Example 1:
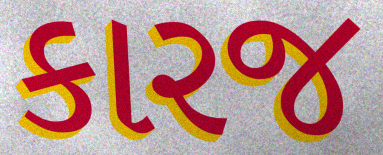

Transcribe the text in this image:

કારજ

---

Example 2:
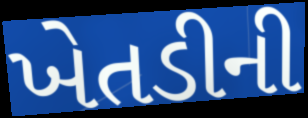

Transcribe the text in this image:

ખેતડીની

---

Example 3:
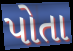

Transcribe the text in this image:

પોતા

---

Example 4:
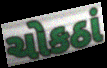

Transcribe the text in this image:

ચોકઠાં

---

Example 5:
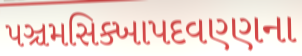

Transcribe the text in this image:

પઞ્ચમસિક્ખાપદવણ્ણના